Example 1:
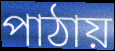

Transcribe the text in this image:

পাঠায়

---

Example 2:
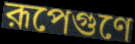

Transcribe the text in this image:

রূপেগুণে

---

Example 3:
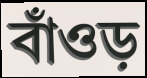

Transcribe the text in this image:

বাঁওড়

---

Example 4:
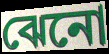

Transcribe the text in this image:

ঝেনো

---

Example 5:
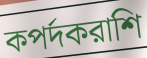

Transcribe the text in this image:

কপর্দকরাশি